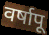
वर्षापू